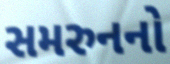
સમરુનનો